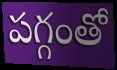
పగ్గంతో